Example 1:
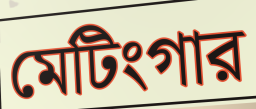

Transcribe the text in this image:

মেটিংগার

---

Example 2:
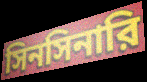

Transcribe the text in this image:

সিনসিনারি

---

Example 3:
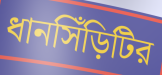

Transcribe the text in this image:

ধানসিঁড়িটির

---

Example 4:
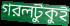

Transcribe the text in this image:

গরলটুকুই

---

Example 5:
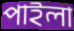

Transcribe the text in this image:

পাইলা